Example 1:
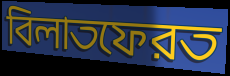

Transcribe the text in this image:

বিলাতফেরত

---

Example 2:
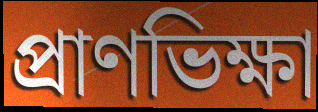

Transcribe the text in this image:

প্রাণভিক্ষা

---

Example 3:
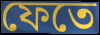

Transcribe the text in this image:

ফেতে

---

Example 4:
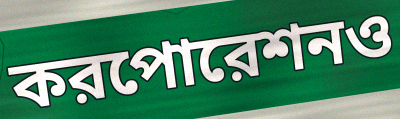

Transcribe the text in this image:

করপোরেশনও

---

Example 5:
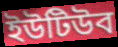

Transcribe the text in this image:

ইউটিউব